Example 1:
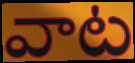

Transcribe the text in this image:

వాట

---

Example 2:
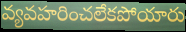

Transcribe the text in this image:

వ్యవహరించలేకపోయారు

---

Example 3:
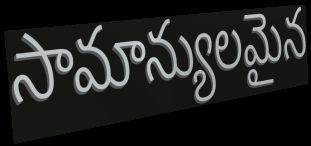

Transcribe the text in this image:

సామాన్యులమైన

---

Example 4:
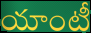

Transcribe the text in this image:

యాంటీ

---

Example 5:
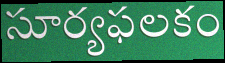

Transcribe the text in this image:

సూర్యఫలకం